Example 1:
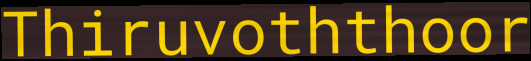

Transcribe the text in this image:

Thiruvoththoor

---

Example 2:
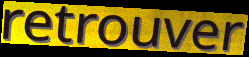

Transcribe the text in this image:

retrouver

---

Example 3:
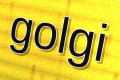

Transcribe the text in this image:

golgi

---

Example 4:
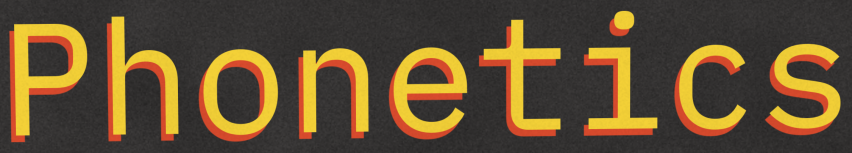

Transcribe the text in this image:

Phonetics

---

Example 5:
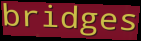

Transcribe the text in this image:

bridges